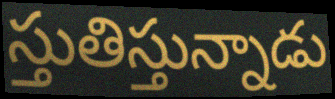
స్తుతిస్తున్నాడు